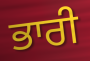
ਭਾਰੀ